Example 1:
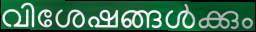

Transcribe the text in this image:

വിശേഷങ്ങൾക്കും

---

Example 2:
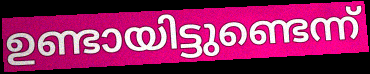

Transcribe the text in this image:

ഉണ്ടായിട്ടുണ്ടെന്ന്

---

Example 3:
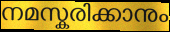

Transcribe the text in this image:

നമസ്കരിക്കാനും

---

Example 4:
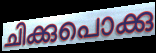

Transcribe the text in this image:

ചിക്കുപൊക്കു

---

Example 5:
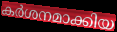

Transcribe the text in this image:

കർശനമാക്കിയ